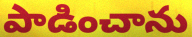
పాడించాను